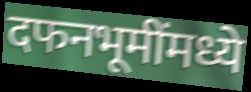
दफनभूमींमध्ये